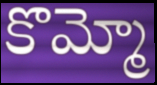
కొమ్మో